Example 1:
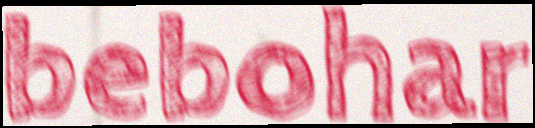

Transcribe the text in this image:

bebohar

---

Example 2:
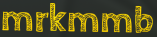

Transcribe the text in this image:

mrkmmb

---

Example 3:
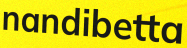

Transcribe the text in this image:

nandibetta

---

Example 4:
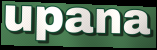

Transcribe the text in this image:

upana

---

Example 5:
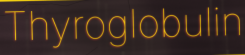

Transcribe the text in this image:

Thyroglobulin